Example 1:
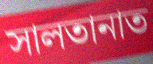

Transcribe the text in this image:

সালতানাত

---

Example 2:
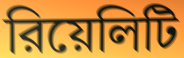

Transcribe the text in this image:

রিয়েলিটি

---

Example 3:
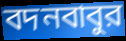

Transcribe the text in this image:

বদনবাবুর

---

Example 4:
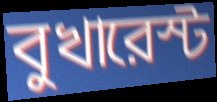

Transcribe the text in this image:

বুখারেস্ট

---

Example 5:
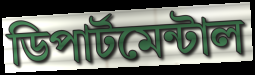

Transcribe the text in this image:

ডিপার্টমেন্টাল